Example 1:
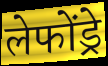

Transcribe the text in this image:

लेफोंड्रे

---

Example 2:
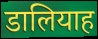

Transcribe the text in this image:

डालियाह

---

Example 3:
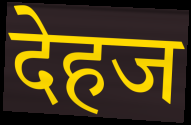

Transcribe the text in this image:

देहज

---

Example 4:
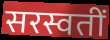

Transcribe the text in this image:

सरस्वतीं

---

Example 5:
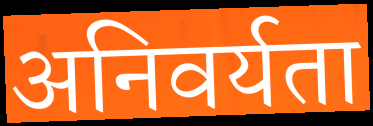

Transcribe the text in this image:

अनिवर्यता